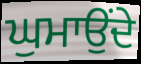
ਘੁਮਾਉਂਦੇ